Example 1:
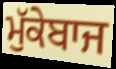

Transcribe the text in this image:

ਮੁੱਕੇਬਾਜ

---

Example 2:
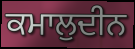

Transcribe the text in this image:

ਕਮਾਲੁਦੀਨ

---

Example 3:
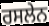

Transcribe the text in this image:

ਰਸਲੇਨ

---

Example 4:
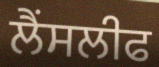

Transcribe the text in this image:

ਲੈਂਸਲੀਫ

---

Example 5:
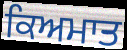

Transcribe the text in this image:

ਕਿਅਮਾਤ